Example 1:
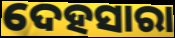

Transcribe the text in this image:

ଦେହସାରା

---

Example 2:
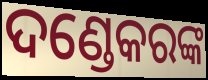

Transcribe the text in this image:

ଦଣ୍ଡେକରଙ୍କ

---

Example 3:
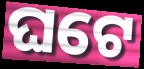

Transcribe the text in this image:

ଘଟେ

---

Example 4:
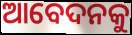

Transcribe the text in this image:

ଆବେଦନକୁ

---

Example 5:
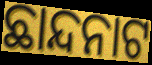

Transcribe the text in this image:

ଛାନ୍ଦନାଟ